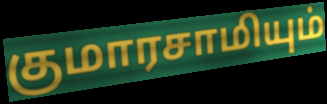
குமாரசாமியும்